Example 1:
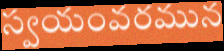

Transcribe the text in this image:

స్వయంవరమున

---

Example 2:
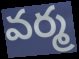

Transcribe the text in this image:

వర్మ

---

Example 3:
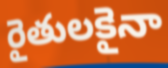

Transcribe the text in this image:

రైతులకైనా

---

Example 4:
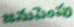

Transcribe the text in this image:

జనుపెంపు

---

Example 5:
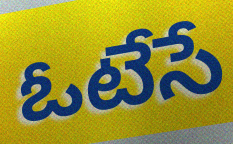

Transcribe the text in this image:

ఓటేసే